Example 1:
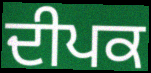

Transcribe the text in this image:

ਦੀਪਕ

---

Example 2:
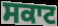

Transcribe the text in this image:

ਸਕਾਟ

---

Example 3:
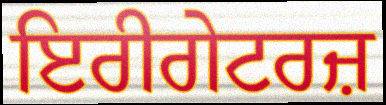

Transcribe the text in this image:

ਇਰੀਗੇਟਰਜ਼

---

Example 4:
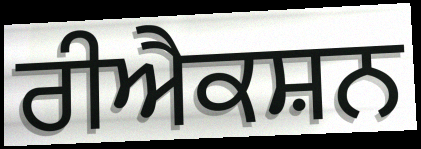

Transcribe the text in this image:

ਰੀਐਕਸ਼ਨ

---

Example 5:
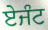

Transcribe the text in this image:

ਏਜੰਟ